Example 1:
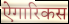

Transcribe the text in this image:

ऐगारिकस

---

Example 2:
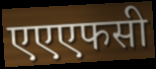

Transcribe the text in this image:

एएएफसी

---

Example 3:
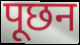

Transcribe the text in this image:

पूछन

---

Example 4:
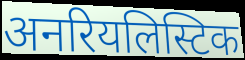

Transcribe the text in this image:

अनरियलिस्टिक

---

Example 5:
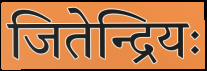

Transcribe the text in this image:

जितेन्द्रियः